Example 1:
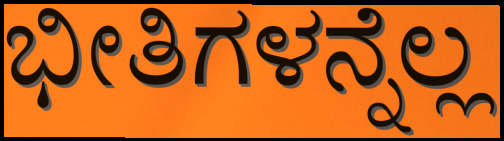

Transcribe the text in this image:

ಭೀತಿಗಳನ್ನೆಲ್ಲ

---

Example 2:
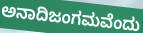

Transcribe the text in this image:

ಅನಾದಿಜಂಗಮವೆಂದು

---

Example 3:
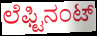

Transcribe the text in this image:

ಲೆಫ್ಟಿನಂಟ್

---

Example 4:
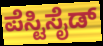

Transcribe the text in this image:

ಪೆಸ್ಟಿಸೈಡ್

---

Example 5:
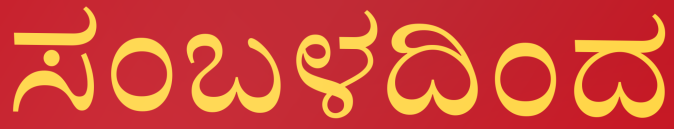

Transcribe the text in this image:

ಸಂಬಳದಿಂದ